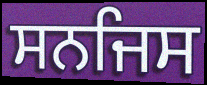
ਸਨਜਿਸ